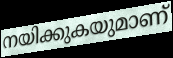
നയിക്കുകയുമാണ്